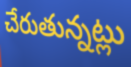
చేరుతున్నట్లు